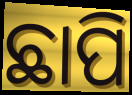
ଛାପି